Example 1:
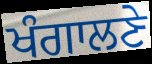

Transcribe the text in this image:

ਖੰਗਾਲਣੇ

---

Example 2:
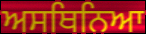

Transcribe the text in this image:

ਅਸਥਿਨਿਆ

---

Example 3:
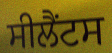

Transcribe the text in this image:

ਸੀਲੈਂਟਸ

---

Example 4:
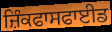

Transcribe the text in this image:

ਜ਼ਿੰਕਫਾਸਫਾਈਡ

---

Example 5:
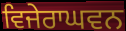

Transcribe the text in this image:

ਵਿਜੇਰਾਘਵਨ